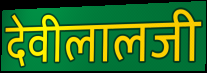
देवीलालजी